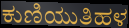
ಕುಣಿಯುತಿಹಳ